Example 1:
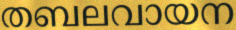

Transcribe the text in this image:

തബലവായന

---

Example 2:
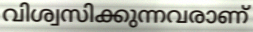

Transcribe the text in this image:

വിശ്വസിക്കുന്നവരാണ്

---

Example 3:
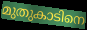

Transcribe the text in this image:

മുതുകാടിനെ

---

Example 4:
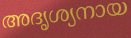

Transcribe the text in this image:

അദൃശ്യനായ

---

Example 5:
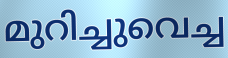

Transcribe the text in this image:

മുറിച്ചുവെച്ച